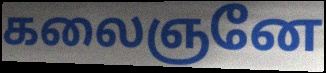
கலைஞனே